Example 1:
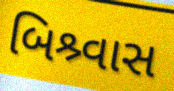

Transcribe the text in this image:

બિશ્ર્વાસ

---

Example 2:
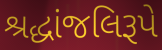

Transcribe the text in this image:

શ્રદ્ધાંજલિરૂપે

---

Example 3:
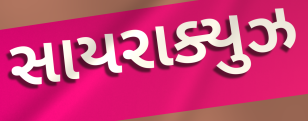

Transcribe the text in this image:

સાયરાક્યુઝ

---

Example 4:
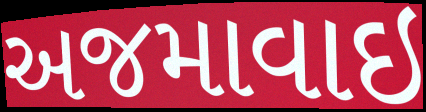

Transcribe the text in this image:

અજમાવાઇ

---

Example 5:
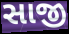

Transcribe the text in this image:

સાજી